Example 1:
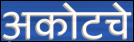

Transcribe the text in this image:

अकोटचे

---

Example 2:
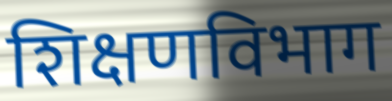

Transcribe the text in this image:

शिक्षणविभाग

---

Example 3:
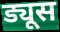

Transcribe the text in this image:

ड्यूस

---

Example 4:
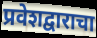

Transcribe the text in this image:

प्रवेशद्वाराचा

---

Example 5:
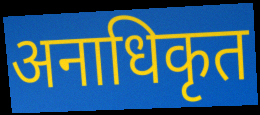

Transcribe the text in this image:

अनाधिकृत